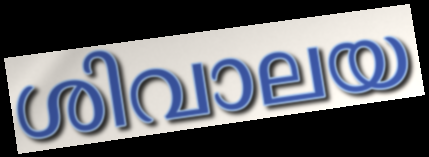
ശിവാലയ